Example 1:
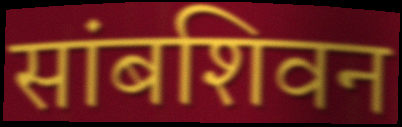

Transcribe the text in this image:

सांबशिवन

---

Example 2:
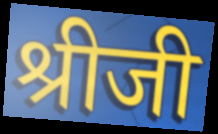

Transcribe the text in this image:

श्रीजी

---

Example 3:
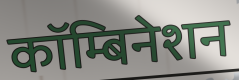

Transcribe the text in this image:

कॉम्बिनेशन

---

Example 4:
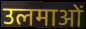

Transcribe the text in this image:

उलमाओं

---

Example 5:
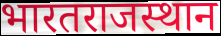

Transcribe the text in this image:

भारतराजस्थान